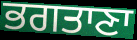
ਭਗਤਾਣਾ